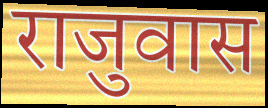
राजुवास